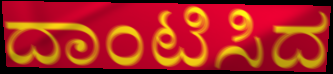
ದಾಂಟಿಸಿದ